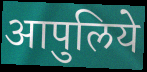
आपुलिये